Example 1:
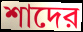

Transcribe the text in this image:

শাদের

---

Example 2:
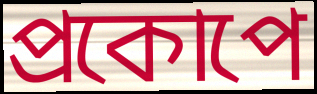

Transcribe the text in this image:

প্রকোপে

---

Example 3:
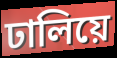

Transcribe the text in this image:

ঢালিয়ে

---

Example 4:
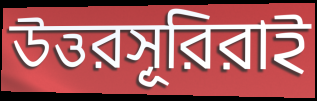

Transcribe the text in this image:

উত্তরসূরিরাই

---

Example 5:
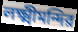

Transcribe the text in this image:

লক্ষ্মীমন্দির